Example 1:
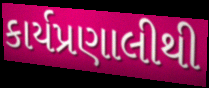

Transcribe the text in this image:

કાર્યપ્રણાલીથી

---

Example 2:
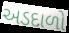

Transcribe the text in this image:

અડદાળો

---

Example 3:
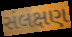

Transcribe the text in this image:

સંલક્ષણ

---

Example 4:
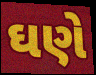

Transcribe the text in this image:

ઘણે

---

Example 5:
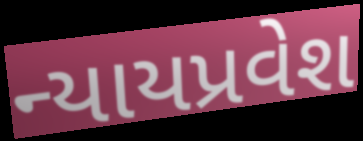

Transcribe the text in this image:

ન્યાયપ્રવેશ